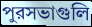
পুরসভাগুলি